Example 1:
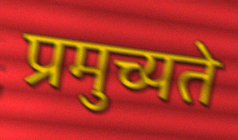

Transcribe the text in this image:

प्रमुच्यते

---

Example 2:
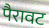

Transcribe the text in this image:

पैरावट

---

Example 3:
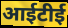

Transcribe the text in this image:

आईटीई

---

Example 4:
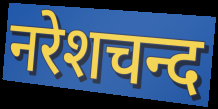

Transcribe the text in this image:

नरेशचन्द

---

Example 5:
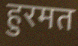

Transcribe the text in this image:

हुरमत